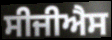
ਸੀਜੀਐਸ